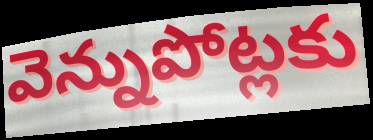
వెన్నుపోట్లకు